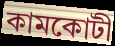
কামকোটী